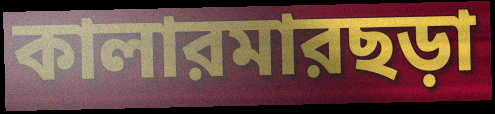
কালারমারছড়া